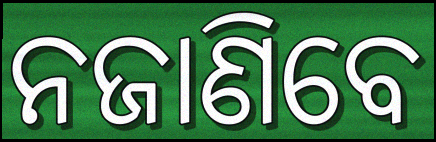
ନଜାଣିବେ